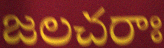
జలచరాః